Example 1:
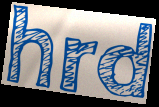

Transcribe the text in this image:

hrd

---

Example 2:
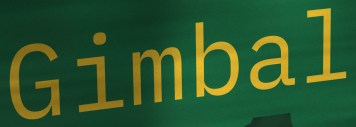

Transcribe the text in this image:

Gimbal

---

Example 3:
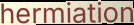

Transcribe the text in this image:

hermiation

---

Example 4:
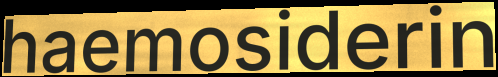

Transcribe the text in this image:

haemosiderin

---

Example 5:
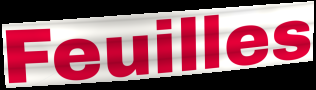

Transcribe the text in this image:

Feuilles